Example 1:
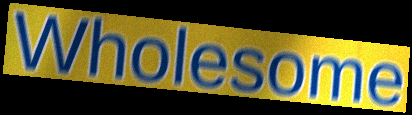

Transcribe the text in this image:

Wholesome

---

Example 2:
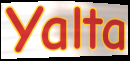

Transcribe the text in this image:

Yalta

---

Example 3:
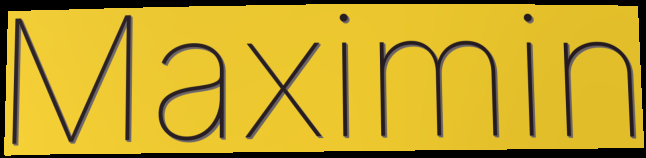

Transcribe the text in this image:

Maximin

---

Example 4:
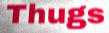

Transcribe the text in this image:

Thugs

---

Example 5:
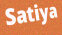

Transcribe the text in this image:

Satiya